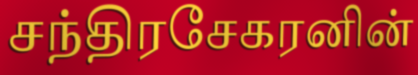
சந்திரசேகரனின்